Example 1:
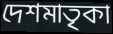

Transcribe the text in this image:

দেশমাতৃকা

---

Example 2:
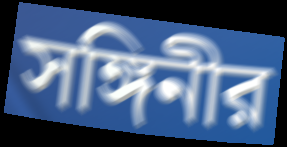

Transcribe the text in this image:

সঙ্গিনীর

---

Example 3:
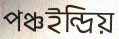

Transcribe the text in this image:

পঞ্চইন্দ্রিয়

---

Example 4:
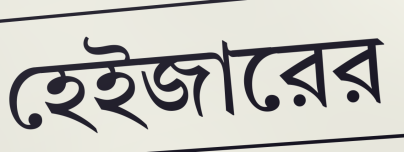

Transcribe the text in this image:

হেইজারের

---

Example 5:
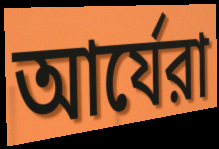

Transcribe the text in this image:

আর্যেরা